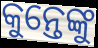
କୁନ୍ତେଙ୍କୁ